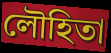
লৌহিতা